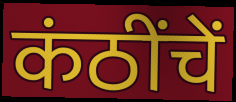
कंठींचें